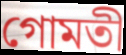
গোমতী